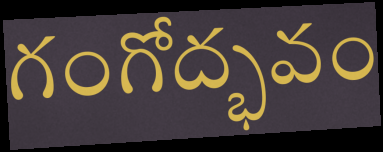
గంగోద్భవం